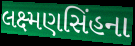
લક્ષ્મણસિંહના